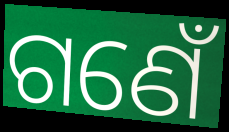
ଗଣେଁ